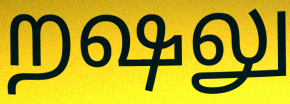
றஷலு